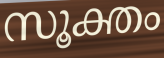
സൂക്തം